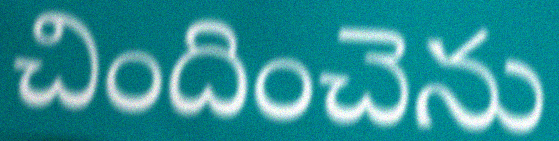
చిందించెను